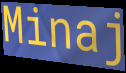
Minaj